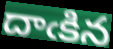
దాఁకిన